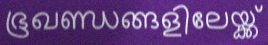
ഭൂഖണ്ഡങ്ങളിലേയ്ക്ക്